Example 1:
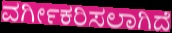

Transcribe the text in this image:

ವರ್ಗೀಕರಿಸಲಾಗಿದೆ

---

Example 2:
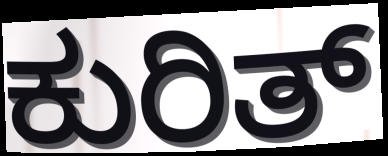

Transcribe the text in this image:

ಕುರಿತ್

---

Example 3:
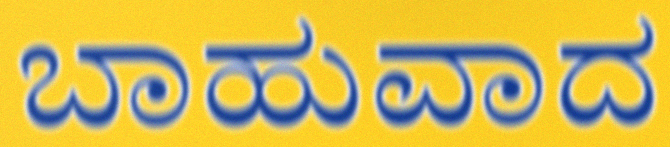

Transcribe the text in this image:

ಬಾಹುವಾದ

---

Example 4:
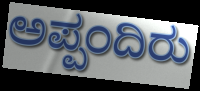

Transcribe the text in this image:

ಅಪ್ಪಂದಿರು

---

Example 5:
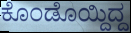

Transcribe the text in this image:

ಕೊಂಡೊಯ್ದಿದ್ದ